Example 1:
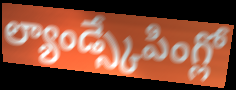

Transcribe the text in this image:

ల్యాండ్స్కేపింగ్లో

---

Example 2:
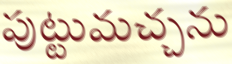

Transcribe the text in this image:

పుట్టుమచ్చను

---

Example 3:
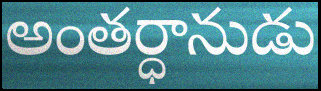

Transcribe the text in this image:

అంతర్ధానుడు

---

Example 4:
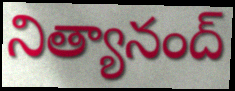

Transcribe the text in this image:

నిత్యానంద్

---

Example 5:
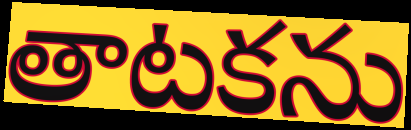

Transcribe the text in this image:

తాటకను